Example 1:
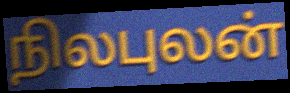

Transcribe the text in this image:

நிலபுலன்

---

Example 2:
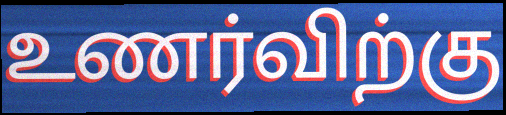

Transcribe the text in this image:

உணர்விற்கு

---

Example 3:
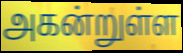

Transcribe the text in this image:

அகன்றுள்ள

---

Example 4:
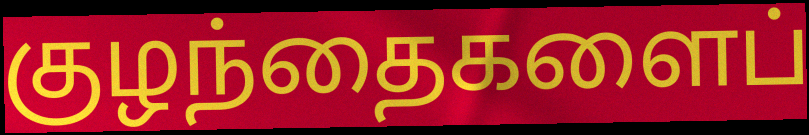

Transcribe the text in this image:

குழந்தைகளைப்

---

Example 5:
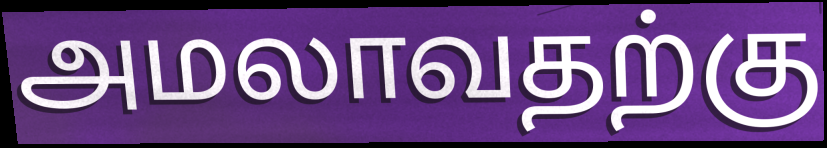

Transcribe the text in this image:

அமலாவதற்கு